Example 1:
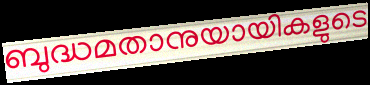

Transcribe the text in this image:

ബുദ്ധമതാനുയായികളുടെ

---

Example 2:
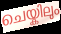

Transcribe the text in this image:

ചെയ്കിലും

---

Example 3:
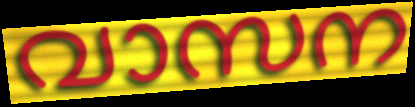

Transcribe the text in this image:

വാസന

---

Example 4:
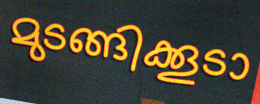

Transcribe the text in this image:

മുടങ്ങിക്കൂടാ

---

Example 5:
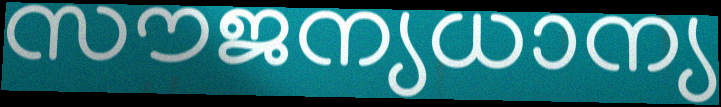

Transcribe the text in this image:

സൗജന്യധാന്യ